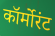
कॉर्मोरंट